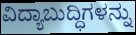
ವಿದ್ಯಾಬುದ್ಧಿಗಳನ್ನು